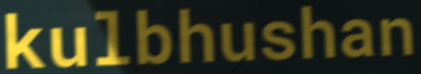
kulbhushan